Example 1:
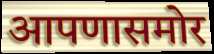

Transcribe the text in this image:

आपणासमोर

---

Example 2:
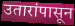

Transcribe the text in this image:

उतारांपासून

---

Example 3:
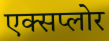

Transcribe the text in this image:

एक्‍सप्लोर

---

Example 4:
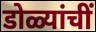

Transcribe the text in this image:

डोळ्यांचीं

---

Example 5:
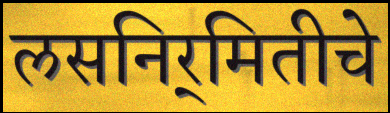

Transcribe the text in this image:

लसनिर्मितीचे